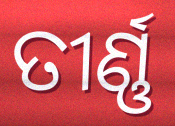
ତୀର୍ଣ୍ଣ